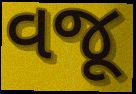
વજૂ